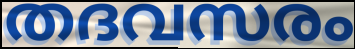
തദവസരം